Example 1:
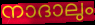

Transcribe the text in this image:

നാദാലും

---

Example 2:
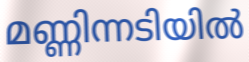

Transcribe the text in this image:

മണ്ണിന്നടിയിൽ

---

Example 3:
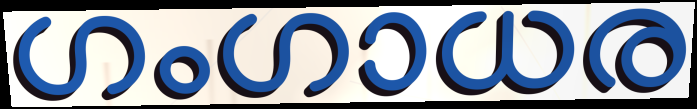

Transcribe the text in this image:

ഗംഗാധര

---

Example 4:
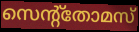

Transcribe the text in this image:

സെന്റ്തോമസ്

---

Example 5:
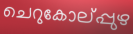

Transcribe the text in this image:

ചെറുകോല്പ്പുഴ